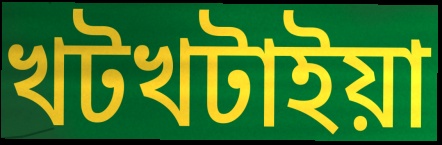
খটখটাইয়া